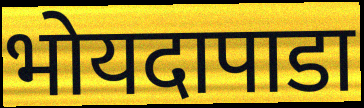
भोयदापाडा